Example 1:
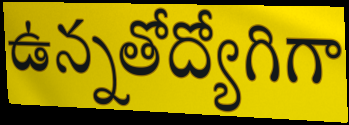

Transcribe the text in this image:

ఉన్నతోద్యోగిగా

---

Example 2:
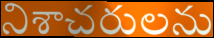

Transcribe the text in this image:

నిశాచరులను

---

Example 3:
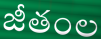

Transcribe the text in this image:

జీతంల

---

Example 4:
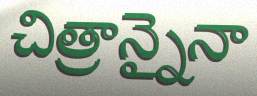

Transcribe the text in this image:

చిత్రాన్నైనా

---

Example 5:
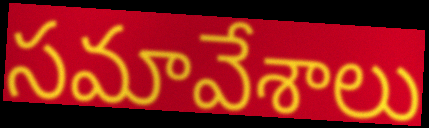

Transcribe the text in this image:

సమావేశాలు